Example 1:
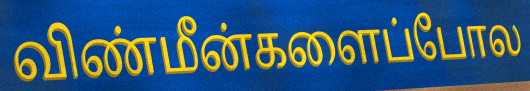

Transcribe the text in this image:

விண்மீன்களைப்போல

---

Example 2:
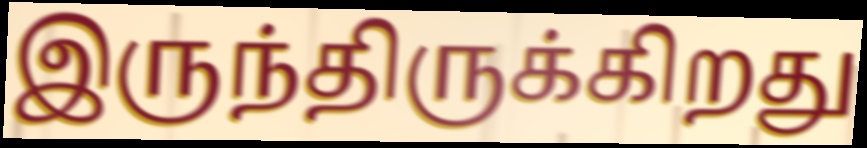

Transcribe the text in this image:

இருந்திருக்கிறது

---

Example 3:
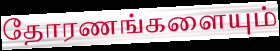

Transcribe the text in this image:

தோரணங்களையும்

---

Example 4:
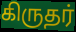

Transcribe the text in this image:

கிருதர்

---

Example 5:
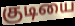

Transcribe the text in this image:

குடியை